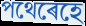
পথেৰেহে